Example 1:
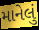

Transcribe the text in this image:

માનેલું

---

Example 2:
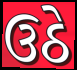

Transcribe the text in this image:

ઉઠે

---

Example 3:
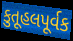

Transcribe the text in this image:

કુતૂહલપૂર્વક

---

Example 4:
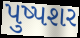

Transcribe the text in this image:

પુષ્પશર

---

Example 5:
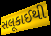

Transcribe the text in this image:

સલૂકાઈથી